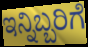
ಇನ್ನಿಬ್ಬರಿಗೆ